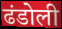
ढंडोली